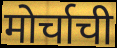
मोर्चाची